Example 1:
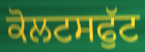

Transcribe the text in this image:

ਕੋਲਟਸਫੁੱਟ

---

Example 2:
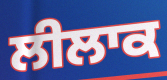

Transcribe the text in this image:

ਲੀਲਾਕ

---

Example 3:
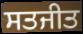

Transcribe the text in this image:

ਸਤਜੀਤ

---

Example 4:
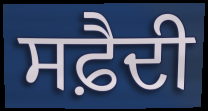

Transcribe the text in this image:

ਸਫ਼ੈਦੀ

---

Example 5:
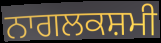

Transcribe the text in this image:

ਨਾਗਲਕਸ਼ਮੀ